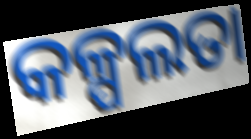
କଳ୍ପଲତା